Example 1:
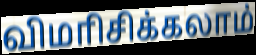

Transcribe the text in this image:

விமரிசிக்கலாம்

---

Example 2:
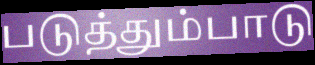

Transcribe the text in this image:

படுத்தும்பாடு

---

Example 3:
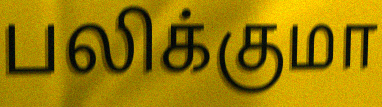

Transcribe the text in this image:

பலிக்குமா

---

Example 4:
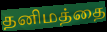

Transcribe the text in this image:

தனிமத்தை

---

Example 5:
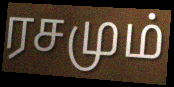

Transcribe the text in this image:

ரசமும்